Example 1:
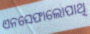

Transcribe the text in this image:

ଏନସେଫାଲୋପାଥି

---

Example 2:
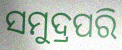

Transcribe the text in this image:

ସମୁଦ୍ରପରି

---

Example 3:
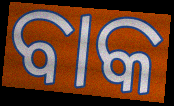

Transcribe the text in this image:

ବାକ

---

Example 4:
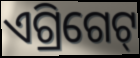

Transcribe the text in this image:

ଏଗ୍ରିଗେଟ୍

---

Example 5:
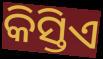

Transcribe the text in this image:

କିସ୍ତିଏ